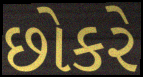
છોકરે